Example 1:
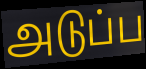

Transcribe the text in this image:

அடுப்ப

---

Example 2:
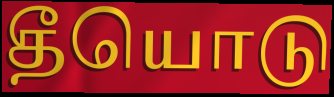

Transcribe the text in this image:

தீயொடு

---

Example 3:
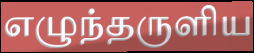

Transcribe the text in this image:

எழுந்தருளிய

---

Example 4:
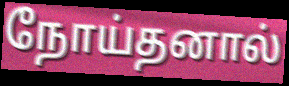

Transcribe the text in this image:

நோய்தனால்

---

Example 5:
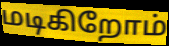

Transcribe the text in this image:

மடிகிறோம்